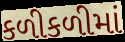
કળીકળીમાં